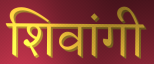
शिवांगी